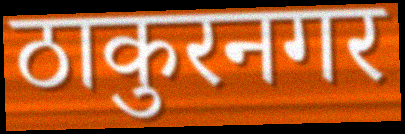
ठाकुरनगर